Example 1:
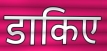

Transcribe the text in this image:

डाकिए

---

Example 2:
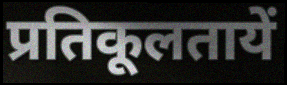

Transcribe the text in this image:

प्रतिकूलतायें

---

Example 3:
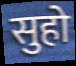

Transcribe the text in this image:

सुहो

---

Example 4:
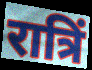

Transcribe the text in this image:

रात्रिं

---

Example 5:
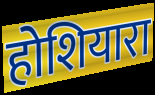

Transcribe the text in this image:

होशियारा